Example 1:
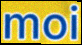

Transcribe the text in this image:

moi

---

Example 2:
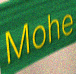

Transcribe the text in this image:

Mohe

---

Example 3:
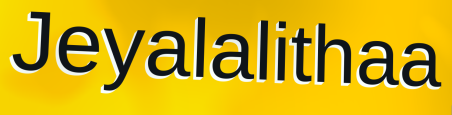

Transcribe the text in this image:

Jeyalalithaa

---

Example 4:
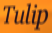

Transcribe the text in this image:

Tulip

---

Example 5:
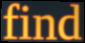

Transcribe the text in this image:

find